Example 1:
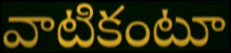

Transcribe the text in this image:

వాటికంటూ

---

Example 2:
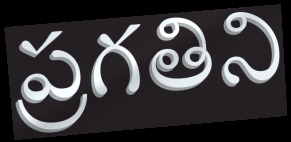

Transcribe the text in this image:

ప్రగతిని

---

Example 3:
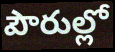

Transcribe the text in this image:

పౌరుల్లో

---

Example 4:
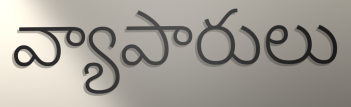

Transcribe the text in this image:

వ్యాపారులు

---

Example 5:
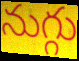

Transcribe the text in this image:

నుగ్గు